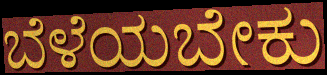
ಬೆಳೆಯಬೇಕು